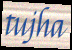
tujha